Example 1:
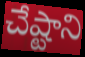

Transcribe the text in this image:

చేష్టాని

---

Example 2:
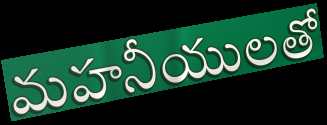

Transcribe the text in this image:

మహనీయులతో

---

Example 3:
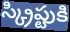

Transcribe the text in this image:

స్క్రిప్టుకి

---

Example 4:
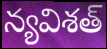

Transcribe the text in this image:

న్యవిశత్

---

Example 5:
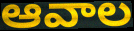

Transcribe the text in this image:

ఆవాల